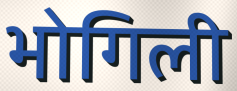
भोगिली